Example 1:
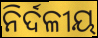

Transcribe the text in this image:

ନିର୍ଦଳୀୟ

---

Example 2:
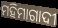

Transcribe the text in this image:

ମହିମାଗାଦୀ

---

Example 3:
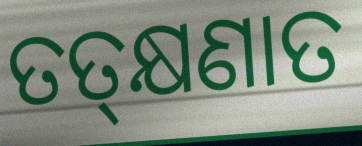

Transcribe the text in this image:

ତତ୍କ୍ଷଣାତ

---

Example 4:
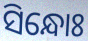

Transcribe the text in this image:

ସିନ୍ଧୋଃ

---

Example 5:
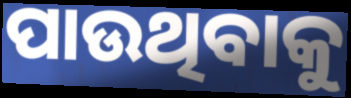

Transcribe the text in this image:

ପାଉଥିବାକୁ